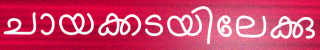
ചായക്കടയിലേക്കു